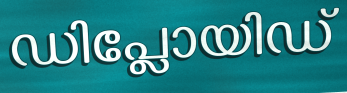
ഡിപ്ലോയിഡ്